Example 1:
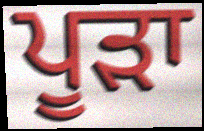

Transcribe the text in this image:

ਪੂੜਾ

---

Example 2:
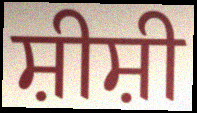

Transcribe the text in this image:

ਸ਼ੀਸ਼ੀ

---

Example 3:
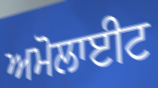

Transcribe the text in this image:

ਅਮੋਲਾਈਟ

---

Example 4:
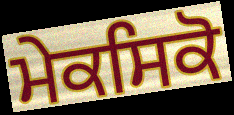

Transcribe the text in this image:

ਮੇਕਸਿਕੋ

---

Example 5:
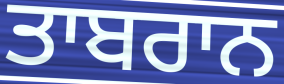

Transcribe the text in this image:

ਤਾਬਰਾਨ